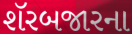
શૅરબજારના